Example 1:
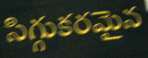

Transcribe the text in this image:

సిగ్గుకరమైన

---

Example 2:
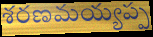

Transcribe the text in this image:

శరణమయ్యప్ప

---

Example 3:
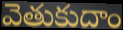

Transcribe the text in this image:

వెతుకుదాం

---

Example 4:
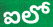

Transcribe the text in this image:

ఐలో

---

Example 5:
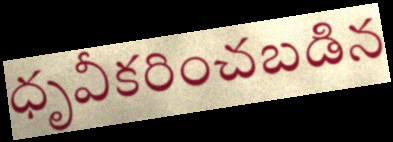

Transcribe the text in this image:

ధృవీకరించబడిన